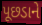
પૂછડાને